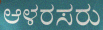
ಆಳರಸರು